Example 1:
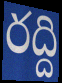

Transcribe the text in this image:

రద్ది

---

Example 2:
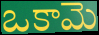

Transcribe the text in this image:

ఒకామె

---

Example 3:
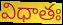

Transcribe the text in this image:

విధాతః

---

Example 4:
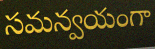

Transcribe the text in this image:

సమన్వయంగా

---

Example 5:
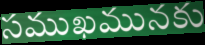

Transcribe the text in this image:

సముఖమునకు